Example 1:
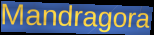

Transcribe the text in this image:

Mandragora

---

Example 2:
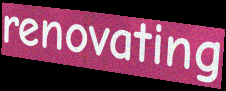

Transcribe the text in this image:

renovating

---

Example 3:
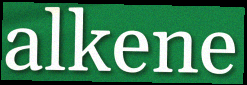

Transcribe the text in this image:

alkene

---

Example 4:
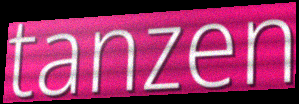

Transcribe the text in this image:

tanzen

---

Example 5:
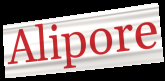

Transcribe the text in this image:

Alipore